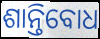
ଶାନ୍ତିବୋଧ